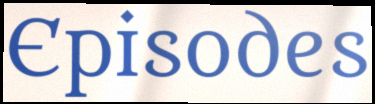
Episodes